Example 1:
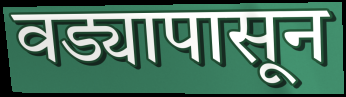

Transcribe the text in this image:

वड्यापासून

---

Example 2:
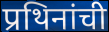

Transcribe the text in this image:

प्रथिनांची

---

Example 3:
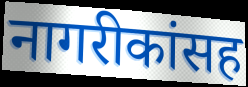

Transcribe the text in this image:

नागरीकांसह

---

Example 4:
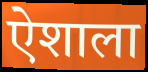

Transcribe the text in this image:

ऐशाला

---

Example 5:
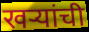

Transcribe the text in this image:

खऱ्यांची